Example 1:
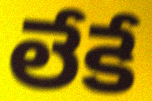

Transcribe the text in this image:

లేకే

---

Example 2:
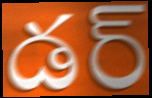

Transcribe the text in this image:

డర్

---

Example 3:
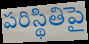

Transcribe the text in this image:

పరిస్థితిపై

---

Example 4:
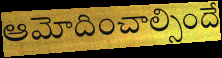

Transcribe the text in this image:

ఆమోదించాల్సిందే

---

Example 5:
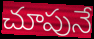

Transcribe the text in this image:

చూపునే